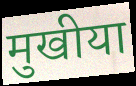
मुखीया